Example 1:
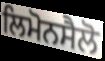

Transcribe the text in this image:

ਲਿਮੋਨਸੈਲੋ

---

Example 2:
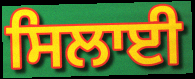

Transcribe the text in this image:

ਸਿਲਾਈ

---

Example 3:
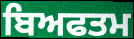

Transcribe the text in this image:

ਬਿਅਫਤਮ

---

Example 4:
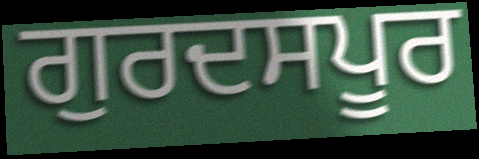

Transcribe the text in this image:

ਗੁਰਦਸਪੂਰ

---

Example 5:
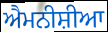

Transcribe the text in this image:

ਐਮਨੀਸ਼ੀਆ